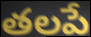
తలపే